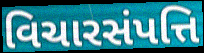
વિચારસંપત્તિ